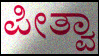
ಪೀತ್ವಾ